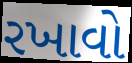
રખાવો